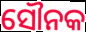
ସୌନକ